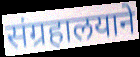
संग्रहालयाने